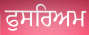
ਫੁਸਰਿਅਮ